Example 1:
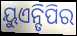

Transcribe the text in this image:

ୟୁଏନ୍ଡିପିର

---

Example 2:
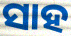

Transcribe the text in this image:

ସାହ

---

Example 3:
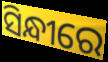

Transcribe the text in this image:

ସିନ୍ଧୀରେ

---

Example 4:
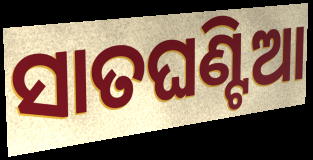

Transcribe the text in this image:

ସାତଘଣ୍ଟିଆ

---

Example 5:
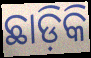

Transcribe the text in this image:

ଛାଡ଼ିକି